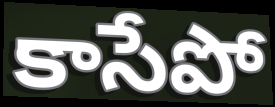
కాసేపో